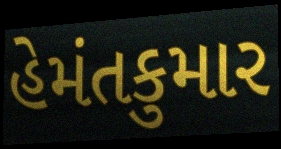
હેમંતકુમાર